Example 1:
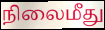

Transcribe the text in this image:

நிலைமீது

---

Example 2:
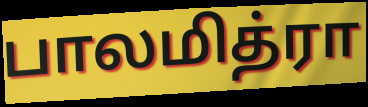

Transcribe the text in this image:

பாலமித்ரா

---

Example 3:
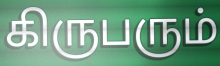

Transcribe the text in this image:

கிருபரும்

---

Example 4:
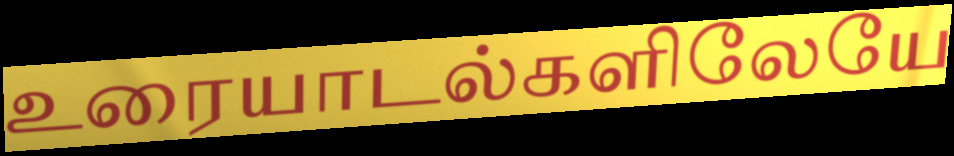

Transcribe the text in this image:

உரையாடல்களிலேயே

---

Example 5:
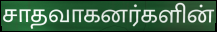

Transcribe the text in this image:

சாதவாகனர்களின்